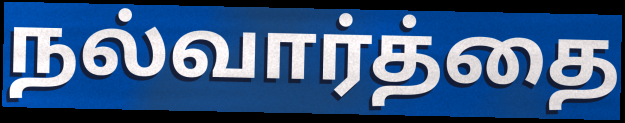
நல்வார்த்தை